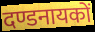
दण्डनायकों